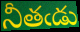
నీతఁడు